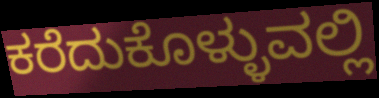
ಕರೆದುಕೊಳ್ಳುವಲ್ಲಿ